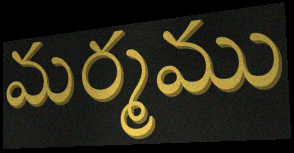
మర్మము